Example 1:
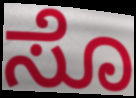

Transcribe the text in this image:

ಸೊ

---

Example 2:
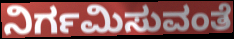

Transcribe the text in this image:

ನಿರ್ಗಮಿಸುವಂತೆ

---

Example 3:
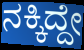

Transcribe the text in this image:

ನಕ್ಕಿದ್ದೇ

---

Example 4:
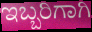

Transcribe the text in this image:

ಇಬ್ಬರಿಗಾಗಿ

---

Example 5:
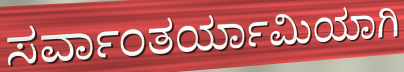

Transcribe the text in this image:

ಸರ್ವಾಂತರ್ಯಾಮಿಯಾಗಿ